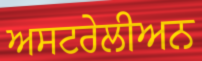
ਅਸਟਰੇਲੀਅਨ